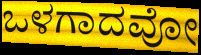
ಒಳಗಾದವೋ